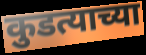
कुडत्याच्या